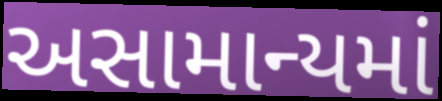
અસામાન્યમાં